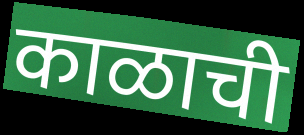
काळाची